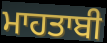
ਮਾਹਤਾਬੀ